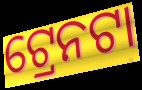
ଟ୍ରେନଟା